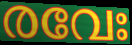
രവേഃ